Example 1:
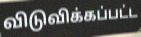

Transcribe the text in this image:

விடுவிக்கப்பட்ட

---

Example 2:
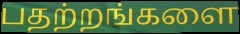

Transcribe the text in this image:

பதற்றங்களை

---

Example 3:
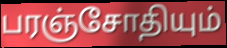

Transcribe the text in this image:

பரஞ்சோதியும்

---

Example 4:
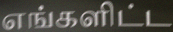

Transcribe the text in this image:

எங்களிட்ட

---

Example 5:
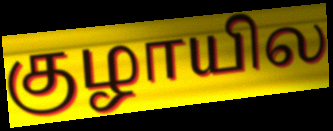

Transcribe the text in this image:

குழாயில